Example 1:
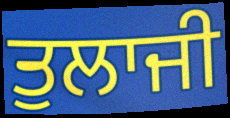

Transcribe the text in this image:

ਤੁਲਾਜੀ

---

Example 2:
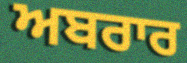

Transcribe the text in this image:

ਅਬਰਾਰ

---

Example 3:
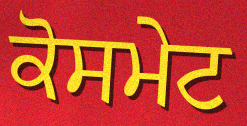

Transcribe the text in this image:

ਕੋਸਮੇਟ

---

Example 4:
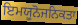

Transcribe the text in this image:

ਇਮਯੂਨੋਜਨਿਕਤਾ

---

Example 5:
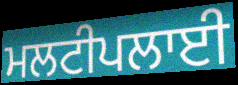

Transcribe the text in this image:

ਮਲਟੀਪਲਾਈ